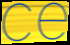
ce